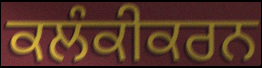
ਕਲੰਕੀਕਰਨ